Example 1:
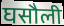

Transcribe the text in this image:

घसौली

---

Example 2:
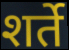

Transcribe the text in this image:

शर्ते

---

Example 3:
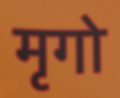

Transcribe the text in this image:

मृगो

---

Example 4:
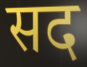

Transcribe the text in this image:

सद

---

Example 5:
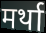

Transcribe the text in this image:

मर्था